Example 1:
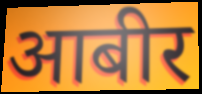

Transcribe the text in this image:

आबीर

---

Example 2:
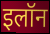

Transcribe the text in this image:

इलॉन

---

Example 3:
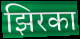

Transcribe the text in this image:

झिरका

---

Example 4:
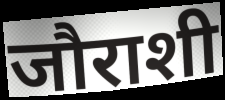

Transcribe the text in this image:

जौराशी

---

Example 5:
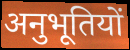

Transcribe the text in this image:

अनुभूतियों